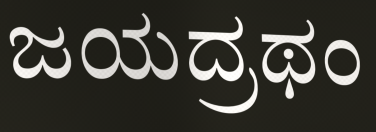
ಜಯದ್ರಥಂ